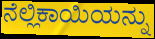
ನೆಲ್ಲಿಕಾಯಿಯನ್ನು